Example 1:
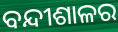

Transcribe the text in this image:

ବନ୍ଦୀଶାଳର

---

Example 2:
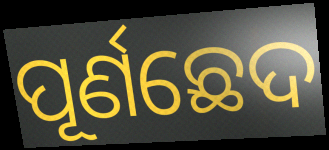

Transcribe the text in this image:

ପୂର୍ଣଛେଦ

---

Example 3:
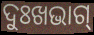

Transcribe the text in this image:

ଦୁଃଖଭାଗ୍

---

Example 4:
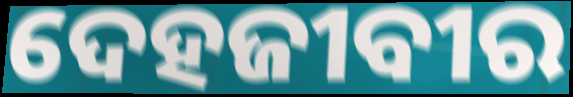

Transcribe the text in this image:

ଦେହଜୀବୀର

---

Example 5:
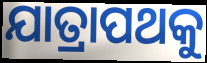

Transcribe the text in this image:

ଯାତ୍ରାପଥକୁ